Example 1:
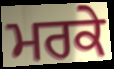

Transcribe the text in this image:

ਮਰਕੇ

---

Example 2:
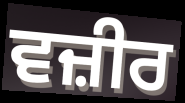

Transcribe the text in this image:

ਵਜ਼ੀਰ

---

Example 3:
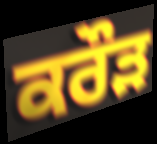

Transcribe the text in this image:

ਕਰੌੜ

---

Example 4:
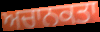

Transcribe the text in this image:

ਅਚਾਨਕਤਾ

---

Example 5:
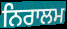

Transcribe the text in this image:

ਨਿਰਾਲਮ